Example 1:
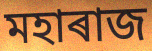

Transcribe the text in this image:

মহাৰাজ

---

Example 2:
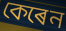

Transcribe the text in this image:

কেৰেন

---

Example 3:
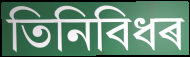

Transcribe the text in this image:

তিনিবিধৰ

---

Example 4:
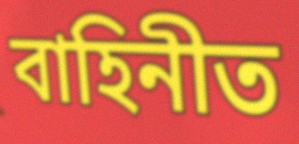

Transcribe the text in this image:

বাহিনীত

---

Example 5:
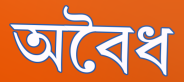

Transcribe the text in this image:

অবৈধ